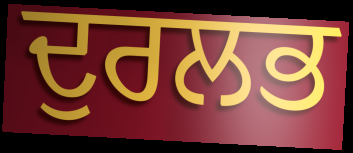
ਦੁਰਲਭ